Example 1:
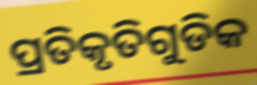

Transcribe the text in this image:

ପ୍ରତିକୃତିଗୁଡିକ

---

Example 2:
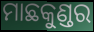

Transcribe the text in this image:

ମାଛକୁଣ୍ଡର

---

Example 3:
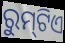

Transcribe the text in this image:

ରୁମ୍‌ଟିଏ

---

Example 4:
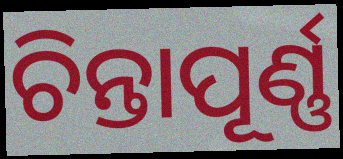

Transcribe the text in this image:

ଚିନ୍ତାପୂର୍ଣ୍ଣ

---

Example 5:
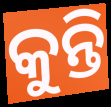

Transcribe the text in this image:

କୁନ୍ତି